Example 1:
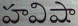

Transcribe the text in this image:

హవిషా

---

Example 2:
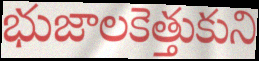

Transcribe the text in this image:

భుజాలకెత్తుకుని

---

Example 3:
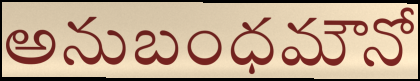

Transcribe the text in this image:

అనుబంధమౌనో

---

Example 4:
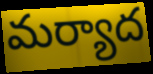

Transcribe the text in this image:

మర్యాద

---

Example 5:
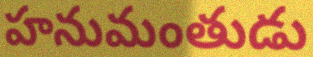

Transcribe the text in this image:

హనుమంతుడు